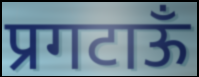
प्रगटाऊँ